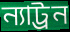
ন্যাট্রন